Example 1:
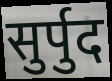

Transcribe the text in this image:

सुर्पुद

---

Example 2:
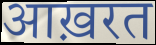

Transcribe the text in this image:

आख़रत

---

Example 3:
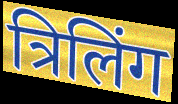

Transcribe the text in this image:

त्रिलिंग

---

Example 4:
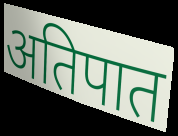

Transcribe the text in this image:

अतिपात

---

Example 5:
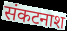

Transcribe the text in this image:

संकटनाश